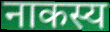
नाकस्य